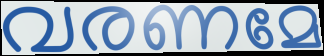
വരണമേ